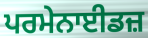
ਪਰਮੇਨਾਈਡਜ਼